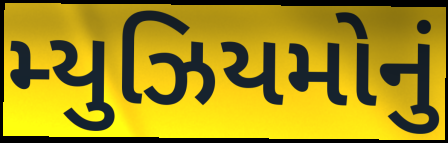
મ્યુઝિયમોનું